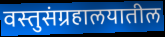
वस्तुसंग्रहालयातील